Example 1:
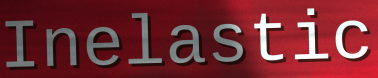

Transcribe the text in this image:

Inelastic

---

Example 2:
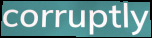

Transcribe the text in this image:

corruptly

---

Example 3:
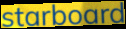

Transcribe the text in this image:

starboard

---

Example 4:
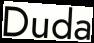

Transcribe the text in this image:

Duda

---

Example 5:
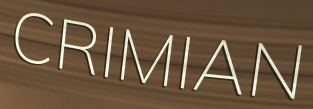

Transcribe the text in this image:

CRIMIAN